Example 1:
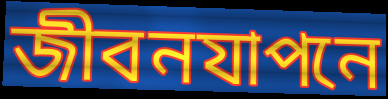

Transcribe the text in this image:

জীবনযাপনে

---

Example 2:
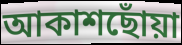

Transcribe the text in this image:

আকাশছোঁয়া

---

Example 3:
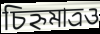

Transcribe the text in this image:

চিহ্নমাত্রও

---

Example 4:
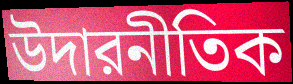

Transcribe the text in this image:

উদারনীতিক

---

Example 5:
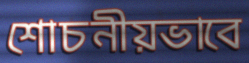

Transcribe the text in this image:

শোচনীয়ভাবে